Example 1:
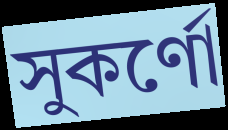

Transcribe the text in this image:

সুকর্ণো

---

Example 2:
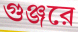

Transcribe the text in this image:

গুঞ্জরে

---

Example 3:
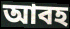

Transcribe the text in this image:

আবহ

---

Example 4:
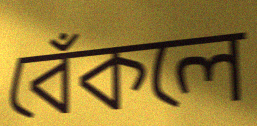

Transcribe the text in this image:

বেঁকলে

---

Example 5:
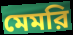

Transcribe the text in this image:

মেমরি